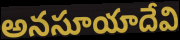
అనసూయాదేవి